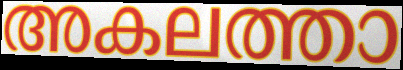
അകലത്താ